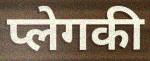
प्लेगकी